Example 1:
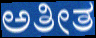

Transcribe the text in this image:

ಅತೀತ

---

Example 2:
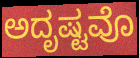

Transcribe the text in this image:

ಅದೃಷ್ಟವೊ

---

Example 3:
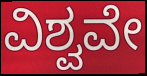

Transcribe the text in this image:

ವಿಶ್ವವೇ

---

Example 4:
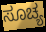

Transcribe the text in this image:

ಸೂಚ್ಯ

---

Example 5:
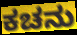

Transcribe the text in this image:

ಕಚನು